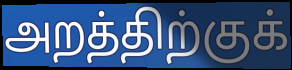
அறத்திற்குக்